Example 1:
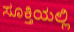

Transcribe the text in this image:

ಸೂಕ್ತಿಯಲ್ಲಿ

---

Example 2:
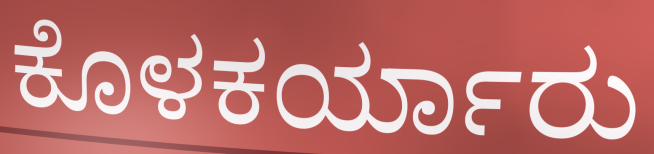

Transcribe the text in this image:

ಕೊಳಕರ್ಯಾರು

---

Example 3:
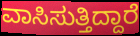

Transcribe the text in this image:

ವಾಸಿಸುತ್ತಿದ್ದಾರೆ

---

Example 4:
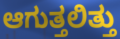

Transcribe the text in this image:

ಆಗುತ್ತಲಿತ್ತು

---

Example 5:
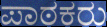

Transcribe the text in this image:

ಪಾಠಕರು